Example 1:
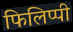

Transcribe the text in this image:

फिलिप्पी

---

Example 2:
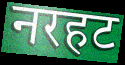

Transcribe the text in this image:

नरहट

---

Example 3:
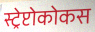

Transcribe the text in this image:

स्ट्रेप्टोकोकस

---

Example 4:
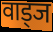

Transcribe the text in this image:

वाड्ज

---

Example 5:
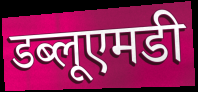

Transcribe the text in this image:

डब्लूएमडी